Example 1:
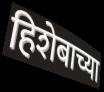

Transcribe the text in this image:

हिशेबाच्या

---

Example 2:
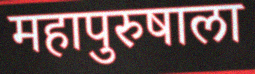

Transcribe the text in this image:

महापुरुषाला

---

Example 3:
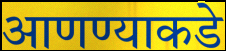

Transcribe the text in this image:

आणण्याकडे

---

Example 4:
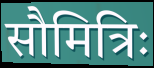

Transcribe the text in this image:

सौमित्रिः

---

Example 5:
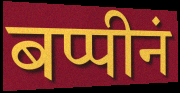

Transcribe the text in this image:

बप्पीनं